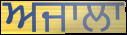
ਅਜਾਲਾ